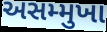
અસમ્મુખા